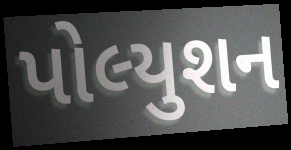
પોલ્યુશન